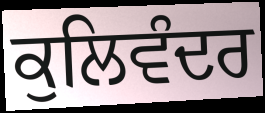
ਕੁਲਿਵੰਦਰ